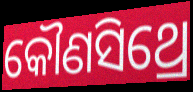
କୌଣସିଥ୍ରେ